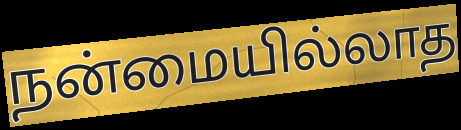
நன்மையில்லாத